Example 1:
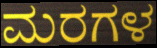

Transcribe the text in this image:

ಮರಗಳ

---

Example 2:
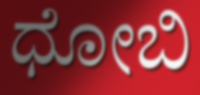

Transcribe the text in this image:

ಧೋಬಿ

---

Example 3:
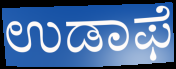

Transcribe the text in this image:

ಉಡಾಫೆ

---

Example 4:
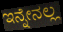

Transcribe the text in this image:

ಇನ್ನೇನಲ್ಲ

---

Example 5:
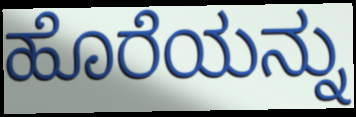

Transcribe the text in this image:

ಹೊರೆಯನ್ನು